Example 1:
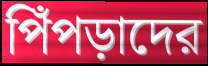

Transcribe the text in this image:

পিঁপড়াদের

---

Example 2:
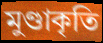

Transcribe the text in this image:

মুণ্ডাকৃতি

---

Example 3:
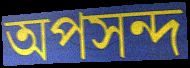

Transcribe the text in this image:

অপসন্দ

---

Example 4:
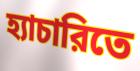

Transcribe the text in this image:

হ্যাচারিতে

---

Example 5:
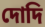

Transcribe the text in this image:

দোদি